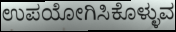
ಉಪಯೋಗಿಸಿಕೊಳ್ಳುವ